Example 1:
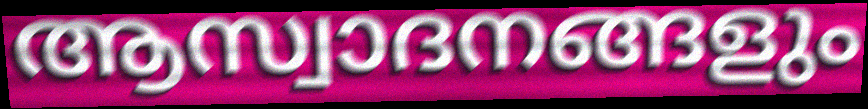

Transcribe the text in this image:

ആസ്വാദനങ്ങളും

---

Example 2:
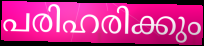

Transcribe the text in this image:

പരിഹരിക്കും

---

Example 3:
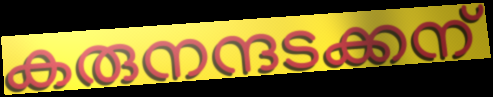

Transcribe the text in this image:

കരുനന്ദടക്കന്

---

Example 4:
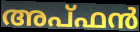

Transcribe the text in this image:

അപ്ഫൻ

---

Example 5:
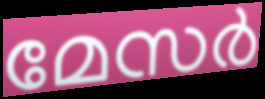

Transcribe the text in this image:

മേസർ